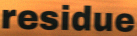
residue